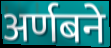
अर्णबने